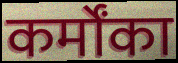
कर्मोंका